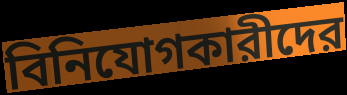
বিনিযোগকারীদের